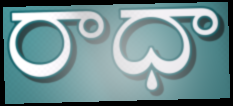
రాధా